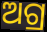
ଅଗ୍ର